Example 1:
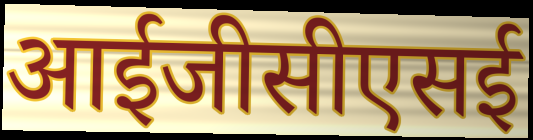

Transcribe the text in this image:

आईजीसीएसई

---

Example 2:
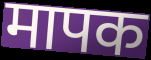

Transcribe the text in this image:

मापक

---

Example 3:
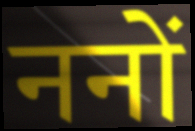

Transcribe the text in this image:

ननों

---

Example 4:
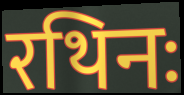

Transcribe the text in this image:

रथिनः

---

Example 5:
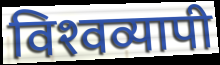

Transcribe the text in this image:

विश्वव्यापी